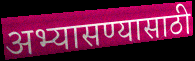
अभ्यासण्यासाठी